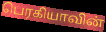
பெரகியாவின்